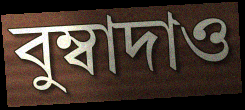
বুম্বাদাও